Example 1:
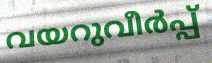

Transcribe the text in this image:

വയറുവീർപ്പ്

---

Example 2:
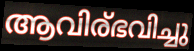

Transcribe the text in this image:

ആവിര്ഭവിച്ചു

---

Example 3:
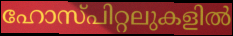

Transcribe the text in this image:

ഹോസ്പിറ്റലുകളിൽ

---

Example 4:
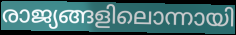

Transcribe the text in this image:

രാജ്യങ്ങളിലൊന്നായി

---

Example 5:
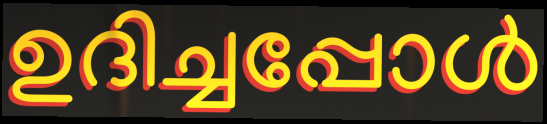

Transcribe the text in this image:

ഉദിച്ചപ്പോൾ